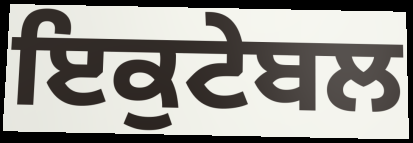
ਇਕੁਟੇਬਲ